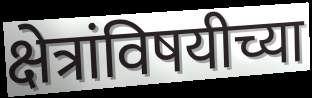
क्षेत्रांविषयीच्या